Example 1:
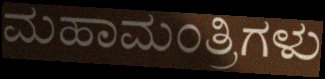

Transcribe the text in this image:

ಮಹಾಮಂತ್ರಿಗಳು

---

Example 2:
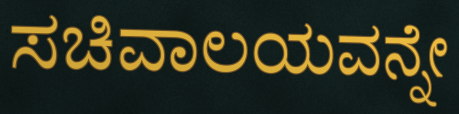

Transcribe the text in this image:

ಸಚಿವಾಲಯವನ್ನೇ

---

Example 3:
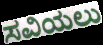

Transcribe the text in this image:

ಸವಿಯಲು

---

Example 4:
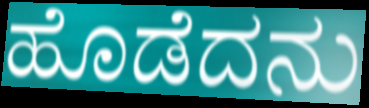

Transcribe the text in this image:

ಹೊಡೆದನು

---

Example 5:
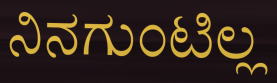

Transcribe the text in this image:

ನಿನಗುಂಟಿಲ್ಲ